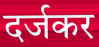
दर्जकर